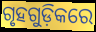
ଗୃହଗୁଡ଼ିକରେ